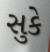
સુકે